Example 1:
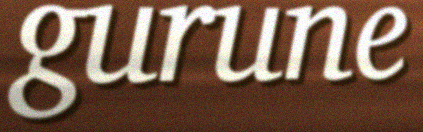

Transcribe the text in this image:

gurune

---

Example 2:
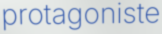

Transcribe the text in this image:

protagoniste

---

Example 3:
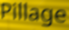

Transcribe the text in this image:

Pillage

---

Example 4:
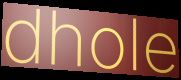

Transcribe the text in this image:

dhole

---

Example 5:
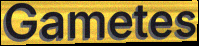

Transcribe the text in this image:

Gametes